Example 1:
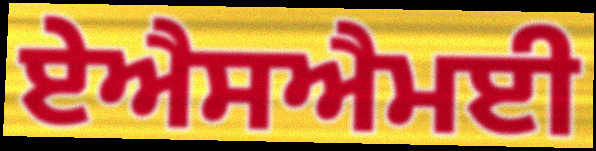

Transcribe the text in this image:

ਏਐਸਐਮਈ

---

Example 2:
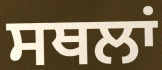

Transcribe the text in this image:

ਸਥਲਾਂ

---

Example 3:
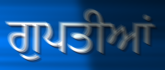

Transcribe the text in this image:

ਗੁਪਤੀਆਂ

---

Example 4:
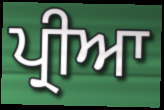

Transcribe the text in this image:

ਪ੍ਰੀਆ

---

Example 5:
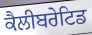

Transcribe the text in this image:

ਕੈਲੀਬਰੇਟਿਡ